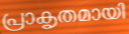
പ്രാകൃതമായി